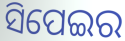
ସିପେଇର